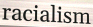
racialism